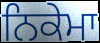
ਨਿਕੇਮਾ